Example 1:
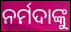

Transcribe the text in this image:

ନର୍ମଦାଙ୍କୁ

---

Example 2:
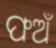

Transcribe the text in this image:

ଫଅଁ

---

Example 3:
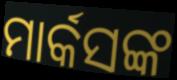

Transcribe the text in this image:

ମାର୍କସଙ୍କ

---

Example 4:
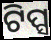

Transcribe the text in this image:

ଟିପ୍ସ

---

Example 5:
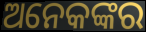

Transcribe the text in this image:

ଅନେକଙ୍କର